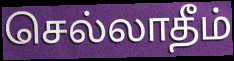
செல்லாதீம்